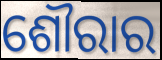
ଶୌରାର